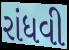
રાંધવી